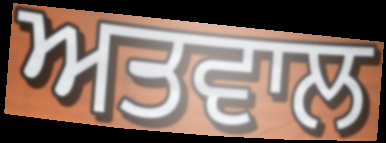
ਅਤਵਾਲ